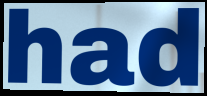
had